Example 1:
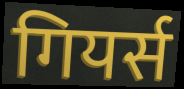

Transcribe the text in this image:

गियर्स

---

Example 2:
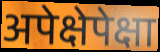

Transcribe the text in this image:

अपेक्षेपेक्षा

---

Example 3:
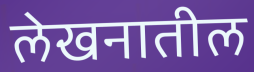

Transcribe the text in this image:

लेखनातील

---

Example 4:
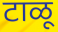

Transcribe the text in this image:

टाळू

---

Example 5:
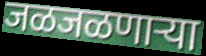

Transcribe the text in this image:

जळजळणाऱ्या